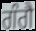
ਗੰਗੈ